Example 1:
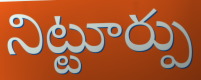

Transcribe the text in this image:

నిట్టూర్పు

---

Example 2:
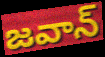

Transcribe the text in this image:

జవాన్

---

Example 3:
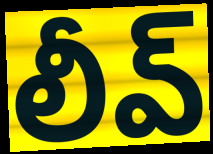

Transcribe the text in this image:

లీవ్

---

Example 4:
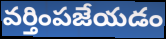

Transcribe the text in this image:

వర్తింపజేయడం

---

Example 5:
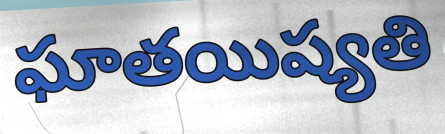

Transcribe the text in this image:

ఘాతయిష్యతి